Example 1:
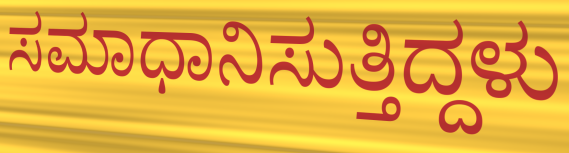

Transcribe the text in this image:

ಸಮಾಧಾನಿಸುತ್ತಿದ್ದಳು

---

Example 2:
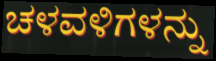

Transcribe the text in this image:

ಚಳವಳಿಗಳನ್ನು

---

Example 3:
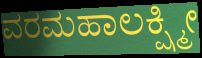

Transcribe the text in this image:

ವರಮಹಾಲಕ್ಷ್ಮೀ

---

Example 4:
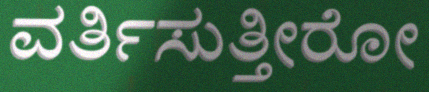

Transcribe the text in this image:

ವರ್ತಿಸುತ್ತೀರೋ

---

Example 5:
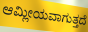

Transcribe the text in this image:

ಆಮ್ಲೀಯವಾಗುತ್ತದೆ